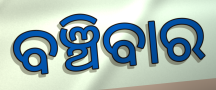
ବଞ୍ଚିବାର